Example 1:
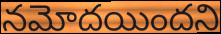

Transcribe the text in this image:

నమోదయిందని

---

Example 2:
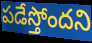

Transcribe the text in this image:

పడేస్తోందని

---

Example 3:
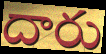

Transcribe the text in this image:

దారు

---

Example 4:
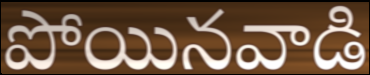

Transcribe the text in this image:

పోయినవాడి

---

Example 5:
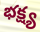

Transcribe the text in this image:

భక్ష్య